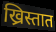
ख्रिस्तात